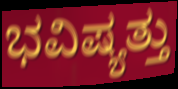
ಭವಿಷ್ಯತ್ತು